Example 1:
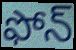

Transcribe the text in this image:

ఫోన్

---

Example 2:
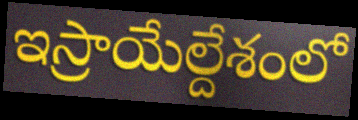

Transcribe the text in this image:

ఇస్రాయేల్దేశంలో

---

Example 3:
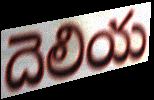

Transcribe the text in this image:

దెలియ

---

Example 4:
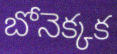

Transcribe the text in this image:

బోనెక్కక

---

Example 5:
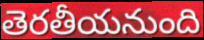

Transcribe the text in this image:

తెరతీయనుంది